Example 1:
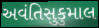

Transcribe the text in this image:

અવંતિસુકુમાલ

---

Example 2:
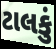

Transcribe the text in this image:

ટાલકું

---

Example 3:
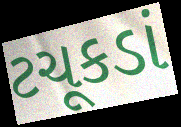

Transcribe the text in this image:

ટચૂકડાં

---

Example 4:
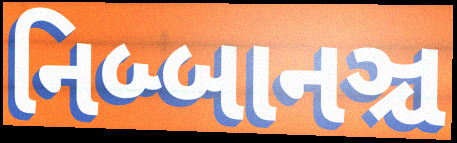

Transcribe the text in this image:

નિબ્બાનઞ્ચ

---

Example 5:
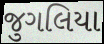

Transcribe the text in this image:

જુગલિયા